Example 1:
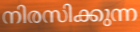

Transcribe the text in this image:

നിരസിക്കുന്ന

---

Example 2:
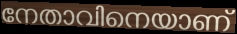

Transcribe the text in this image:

നേതാവിനെയാണ്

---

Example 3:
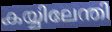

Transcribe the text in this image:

കയ്യിലേന്തി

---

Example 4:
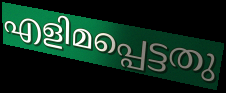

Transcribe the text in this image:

എളിമപ്പെട്ടതു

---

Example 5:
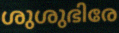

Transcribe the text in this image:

ശുശുഭിരേ